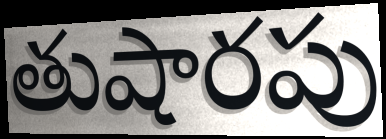
తుషారపు